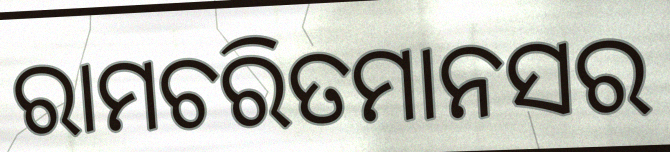
ରାମଚରିତମାନସର